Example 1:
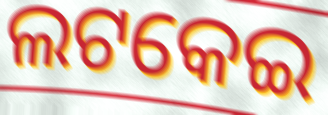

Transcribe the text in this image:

ଲଟକେଇ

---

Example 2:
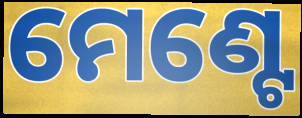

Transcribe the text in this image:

ମେଣ୍ଟେ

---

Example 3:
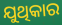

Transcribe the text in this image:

ଯୁଥିକାର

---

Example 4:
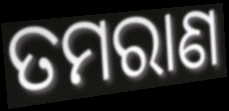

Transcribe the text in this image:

ତମରାଣ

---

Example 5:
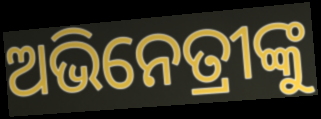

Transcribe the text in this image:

ଅଭିନେତ୍ରୀଙ୍କୁ